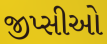
જીપ્સીઓ